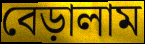
বেড়ালাম